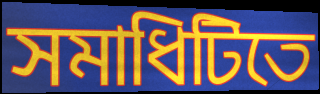
সমাধিটিতে